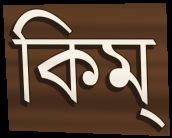
কিম্